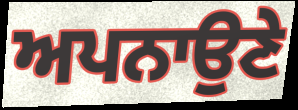
ਅਪਨਾਉਣੇ